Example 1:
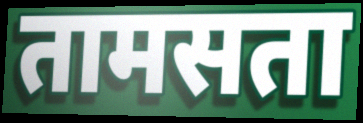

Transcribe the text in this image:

तामसता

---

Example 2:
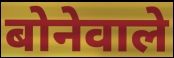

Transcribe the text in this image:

बोनेवाले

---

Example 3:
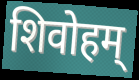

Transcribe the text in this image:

शिवोहम्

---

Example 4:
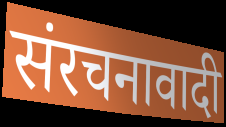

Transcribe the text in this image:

संरचनावादी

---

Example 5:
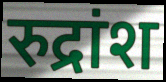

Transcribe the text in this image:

रुद्रांश